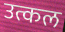
उत्कल